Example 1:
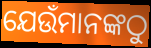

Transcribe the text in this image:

ଯେଉଁମାନଙ୍କଠୁ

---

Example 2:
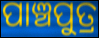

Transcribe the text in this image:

ପାଞ୍ଚପୁତ୍ର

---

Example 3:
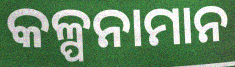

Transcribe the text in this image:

କଳ୍ପନାମାନ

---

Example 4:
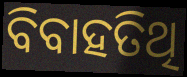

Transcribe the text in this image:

ବିବାହତିଥି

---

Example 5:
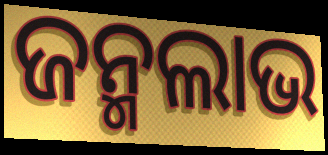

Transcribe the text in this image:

ଜନ୍ମଲାଭ